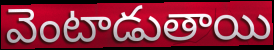
వెంటాడుతాయి